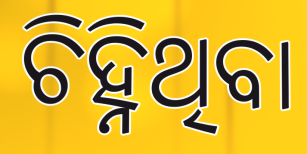
ଚିହ୍ନିଥିବା